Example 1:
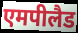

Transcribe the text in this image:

एमपीलैड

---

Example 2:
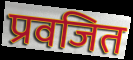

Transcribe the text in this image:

प्रवजित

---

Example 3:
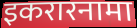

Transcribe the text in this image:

इकरारनामा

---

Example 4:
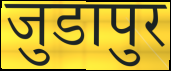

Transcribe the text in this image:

जुडापुर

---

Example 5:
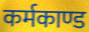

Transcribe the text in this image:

कर्मकाण्ड